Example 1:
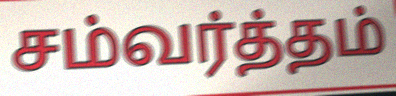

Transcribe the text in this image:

சம்வர்த்தம்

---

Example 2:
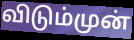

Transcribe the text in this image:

விடும்முன்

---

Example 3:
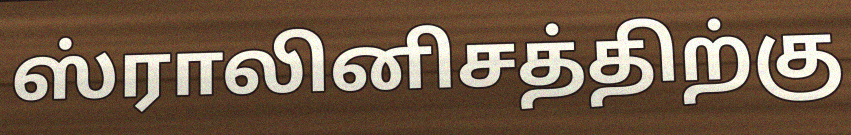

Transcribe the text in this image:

ஸ்ராலினிசத்திற்கு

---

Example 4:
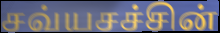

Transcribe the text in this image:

சவ்யசச்சின்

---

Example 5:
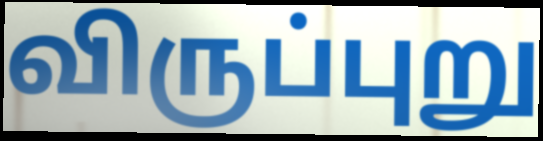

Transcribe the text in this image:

விருப்புறு